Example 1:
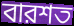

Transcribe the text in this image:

বারশত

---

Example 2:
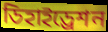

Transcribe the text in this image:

ডিহাইড্রেশন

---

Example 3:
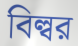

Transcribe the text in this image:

বিল্বর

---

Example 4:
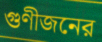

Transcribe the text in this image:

গুণীজনের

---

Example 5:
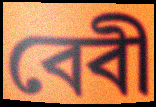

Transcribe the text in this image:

বেবী